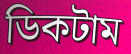
ডিকটাম